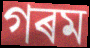
গৰম